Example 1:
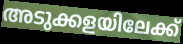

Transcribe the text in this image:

അടുക്കളയിലേക്ക്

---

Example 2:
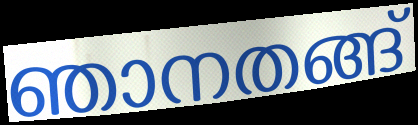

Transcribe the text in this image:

ഞാനതങ്ങ്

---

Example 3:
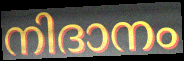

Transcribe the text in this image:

നിദാനം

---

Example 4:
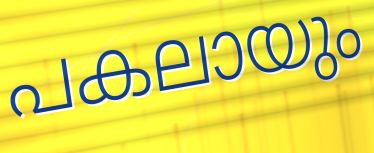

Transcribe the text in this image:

പകലായും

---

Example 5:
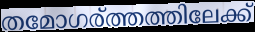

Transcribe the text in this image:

തമോഗര്ത്തത്തിലേക്ക്